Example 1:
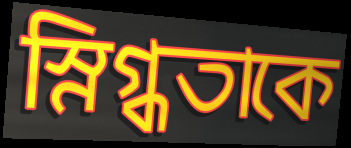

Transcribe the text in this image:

স্নিগ্ধতাকে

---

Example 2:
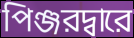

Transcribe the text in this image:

পিঞ্জরদ্বারে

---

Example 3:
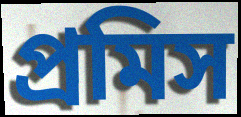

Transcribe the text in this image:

প্রমিস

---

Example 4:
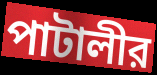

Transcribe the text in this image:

পাটালীর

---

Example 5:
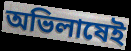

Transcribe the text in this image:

অভিলাষেই